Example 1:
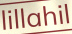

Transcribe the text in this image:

lillahil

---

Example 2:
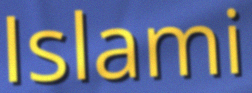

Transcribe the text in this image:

Islami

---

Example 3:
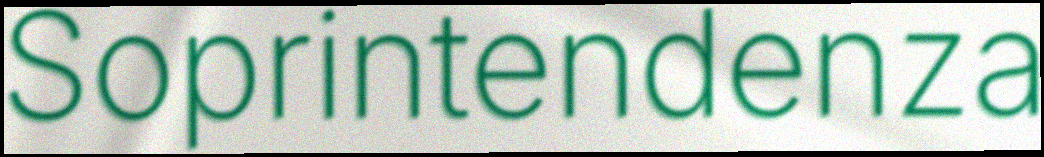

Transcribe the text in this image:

Soprintendenza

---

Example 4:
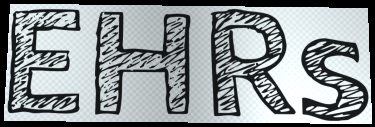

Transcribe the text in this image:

EHRs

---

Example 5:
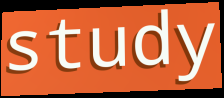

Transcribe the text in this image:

study